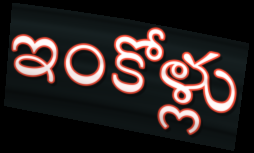
ఇంకోళ్లు